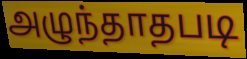
அழுந்தாதபடி